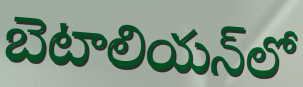
బెటాలియన్‌లో